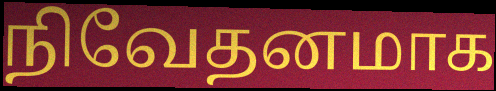
நிவேதனமாக